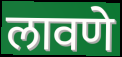
लावणे